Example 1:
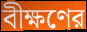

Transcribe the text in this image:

বীক্ষণের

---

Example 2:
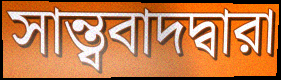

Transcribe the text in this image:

সান্ত্ববাদদ্বারা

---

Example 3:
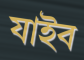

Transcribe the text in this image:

যাইব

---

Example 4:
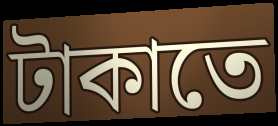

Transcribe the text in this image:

টাকাতে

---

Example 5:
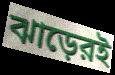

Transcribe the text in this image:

ঝাড়েরই